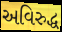
અવિરુદ્ધ